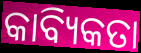
କାବ୍ୟିକତା